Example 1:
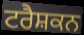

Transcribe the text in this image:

ਟਰੈਸ਼ਕਨ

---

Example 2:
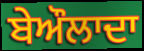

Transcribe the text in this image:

ਬੇਔਲਾਦਾ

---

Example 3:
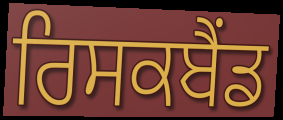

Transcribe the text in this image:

ਰਿਸਕਬੈਂਡ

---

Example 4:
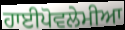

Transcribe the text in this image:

ਹਾਈਪੋਵਲੇਮੀਆ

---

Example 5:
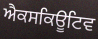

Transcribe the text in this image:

ਐਕਸਕਿਊਟਿਵ